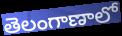
తెలంగాణాలో